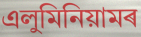
এলুমিনিয়ামৰ